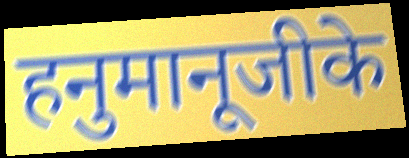
हनुमानूजीके